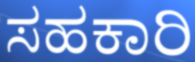
ಸಹಕಾರಿ